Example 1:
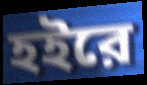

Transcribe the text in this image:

হইরে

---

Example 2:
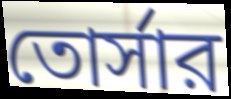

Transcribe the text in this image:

তোর্সার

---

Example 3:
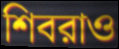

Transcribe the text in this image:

শিবরাও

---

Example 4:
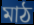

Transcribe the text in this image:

মাঠ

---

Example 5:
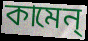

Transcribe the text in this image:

কামেন্